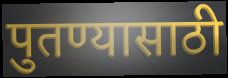
पुतण्यासाठी